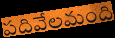
పదివేలమంది